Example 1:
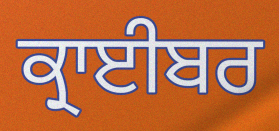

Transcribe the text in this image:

ਕ੍ਰਾਈਬਰ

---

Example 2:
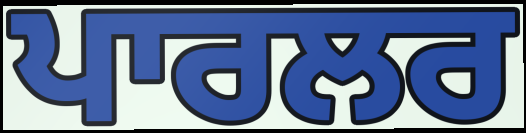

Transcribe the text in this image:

ਪਾਰਲਰ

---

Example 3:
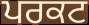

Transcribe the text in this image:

ਪਰਕਟ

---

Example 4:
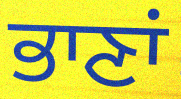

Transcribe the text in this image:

ਭਾਣਾਂ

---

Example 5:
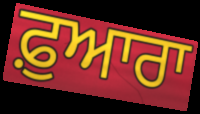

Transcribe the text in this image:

ਫ਼ੁਆਰਾ